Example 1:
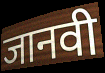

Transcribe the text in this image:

जानवी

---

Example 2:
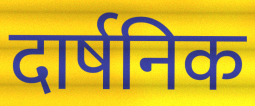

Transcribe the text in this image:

दार्षनिक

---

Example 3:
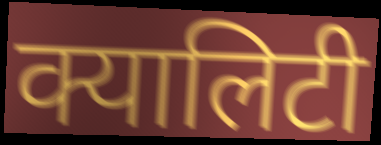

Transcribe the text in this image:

क्यालिटी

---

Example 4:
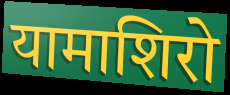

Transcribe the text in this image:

यामाशिरो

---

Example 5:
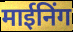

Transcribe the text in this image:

माईनिंग